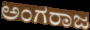
ಅಂಗರಾಜ